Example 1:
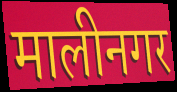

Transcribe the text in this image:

मालीनगर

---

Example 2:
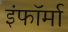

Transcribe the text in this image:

इंफॉर्मा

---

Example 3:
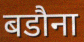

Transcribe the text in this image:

बडौना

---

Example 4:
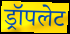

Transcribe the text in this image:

ड्रॉपलेट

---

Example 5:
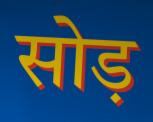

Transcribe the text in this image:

सोड़